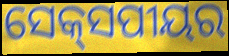
ସେକ୍‌ସପୀୟର